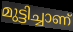
മുട്ടിച്ചാണ്